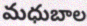
మధుబాల